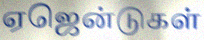
ஏஜென்டுகள்